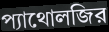
প্যাথোলজির